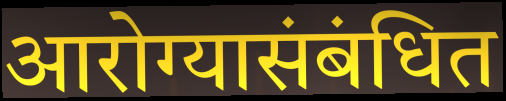
आरोग्यासंबंधित